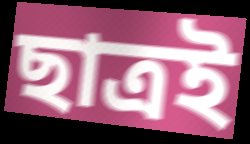
ছাত্রই